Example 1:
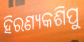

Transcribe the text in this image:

ହିରଣ୍ୟକଶିପୁ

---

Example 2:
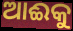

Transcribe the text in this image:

ଆଈକୁ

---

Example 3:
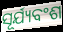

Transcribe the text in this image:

ସୂର୍ଯ୍ୟବଂଶ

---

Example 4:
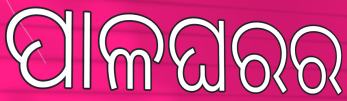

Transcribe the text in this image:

ପାଳଘରର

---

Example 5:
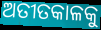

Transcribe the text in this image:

ଅତୀତକାଳକୁ